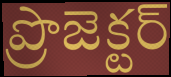
ప్రొజెక్టర్